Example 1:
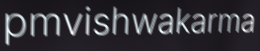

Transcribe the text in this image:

pmvishwakarma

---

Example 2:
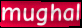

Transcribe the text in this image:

mughal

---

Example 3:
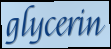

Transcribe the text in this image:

glycerin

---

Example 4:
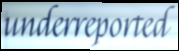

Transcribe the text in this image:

underreported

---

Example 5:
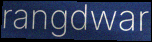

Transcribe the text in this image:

rangdwar